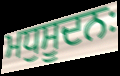
ਮਧੁਸੂਦਨਃ